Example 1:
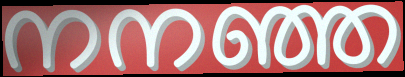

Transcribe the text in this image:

നനഞ്ഞ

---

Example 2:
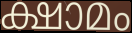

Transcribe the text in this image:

ക്ഷാമം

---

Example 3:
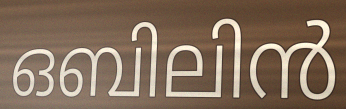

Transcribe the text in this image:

ഒബിലിൻ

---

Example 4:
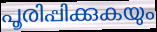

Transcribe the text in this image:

പൂരിപ്പിക്കുകയും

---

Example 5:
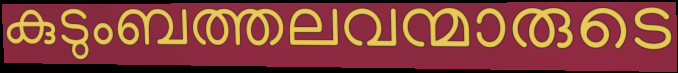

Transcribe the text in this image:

കുടുംബത്തലവന്മാരുടെ